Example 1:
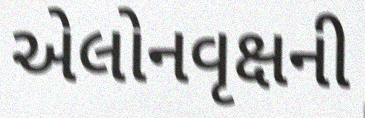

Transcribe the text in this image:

એલોનવૃક્ષની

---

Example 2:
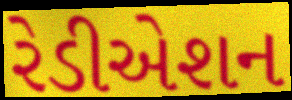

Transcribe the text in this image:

રેડીએશન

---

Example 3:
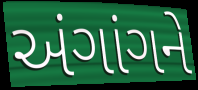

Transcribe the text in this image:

અંગાંગને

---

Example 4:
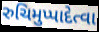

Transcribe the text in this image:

રુચિમુપ્પાદેત્વા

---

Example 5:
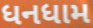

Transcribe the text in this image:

ધનધામ